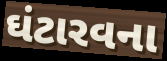
ઘંટારવના